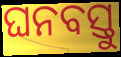
ଘନବସ୍ତୁ